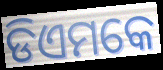
ଡିଏମକେ